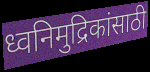
ध्वनिमुद्रिकांसाठी